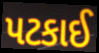
પટકાઈ